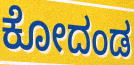
ಕೋದಂಡ